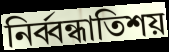
নির্ব্বন্ধাতিশয়